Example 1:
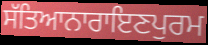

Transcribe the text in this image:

ਸੱਤਿਆਨਾਰਾਇਣਪੁਰਮ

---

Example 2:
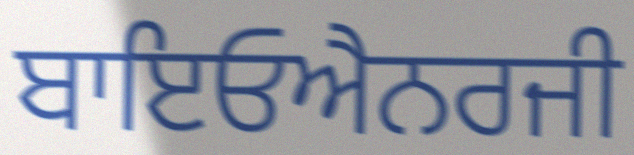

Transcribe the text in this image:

ਬਾਇਓਐਨਰਜੀ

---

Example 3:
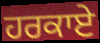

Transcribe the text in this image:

ਹਰਕਾਏ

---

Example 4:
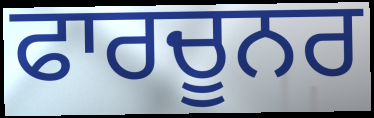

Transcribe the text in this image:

ਫਾਰਚੂਨਰ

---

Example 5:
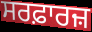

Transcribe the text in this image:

ਸਰਫ਼ਾਰਜ਼